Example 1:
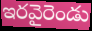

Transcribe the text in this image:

ఇరవైరెండు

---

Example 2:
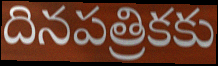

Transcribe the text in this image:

దినపత్రికకు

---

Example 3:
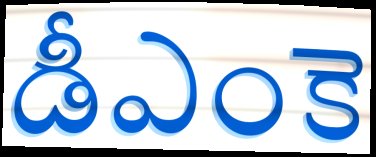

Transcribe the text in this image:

డీఎంకె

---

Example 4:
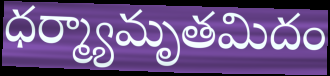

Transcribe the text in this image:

ధర్మ్యామృతమిదం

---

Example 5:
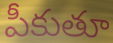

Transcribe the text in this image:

పీకుతూ